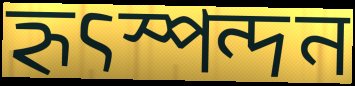
হৃৎস্পন্দন